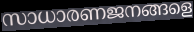
സാധാരണജനങ്ങളെ